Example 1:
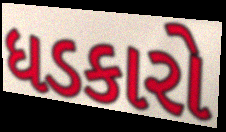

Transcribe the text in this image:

ધડકારો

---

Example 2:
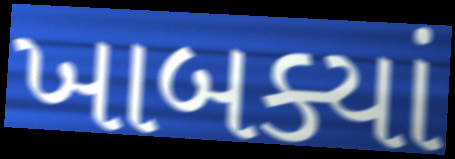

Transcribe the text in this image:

ખાબક્યાં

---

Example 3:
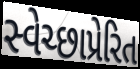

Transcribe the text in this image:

સ્વેચ્છાપ્રેરિત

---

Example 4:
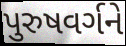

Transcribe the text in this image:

પુરુષવર્ગને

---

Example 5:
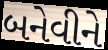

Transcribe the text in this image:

બનેવીને